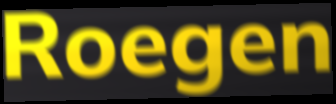
Roegen